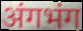
अंगभंग